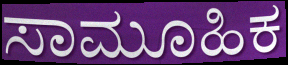
ಸಾಮೂಹಿಕ